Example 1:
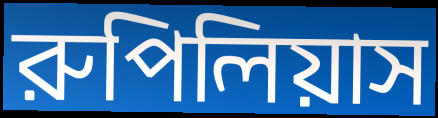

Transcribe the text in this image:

রুপিলিয়াস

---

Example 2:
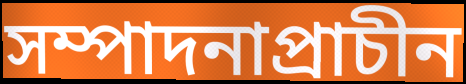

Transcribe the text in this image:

সম্পাদনাপ্রাচীন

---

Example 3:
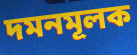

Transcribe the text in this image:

দমনমূলক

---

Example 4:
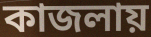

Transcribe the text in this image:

কাজলায়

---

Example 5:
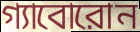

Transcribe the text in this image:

গ্যাবোরোন